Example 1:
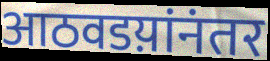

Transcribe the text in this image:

आठवडय़ांनंतर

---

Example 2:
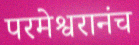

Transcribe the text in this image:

परमेश्वरानंच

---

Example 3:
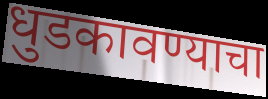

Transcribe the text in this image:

धुडकावण्याचा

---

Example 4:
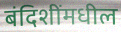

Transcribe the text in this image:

बंदिशींमधील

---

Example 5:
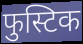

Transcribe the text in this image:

फुस्टिक